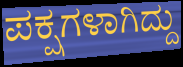
ಪಕ್ಷಗಳಾಗಿದ್ದು